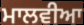
ਮਾਲਵੀਆ